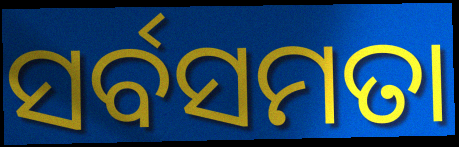
ସର୍ବସମତା